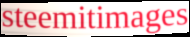
steemitimages